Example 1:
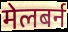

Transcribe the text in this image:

मेलबर्न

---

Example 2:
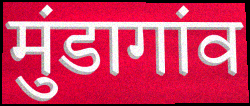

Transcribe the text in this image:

मुंडागांव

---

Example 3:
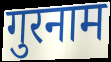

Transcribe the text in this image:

गुरनाम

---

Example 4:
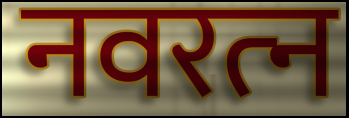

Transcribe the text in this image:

नवरत्‍न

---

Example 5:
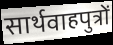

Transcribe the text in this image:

सार्थवाहपुत्रों